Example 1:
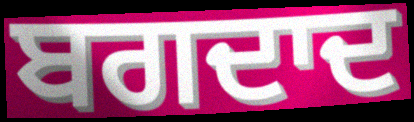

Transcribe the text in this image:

ਬਗਦਾਦ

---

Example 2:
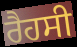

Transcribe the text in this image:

ਰੈਹਸੀ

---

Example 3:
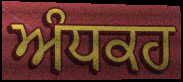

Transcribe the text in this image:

ਅੰਧਕਹ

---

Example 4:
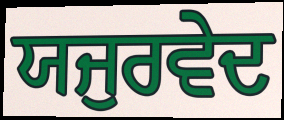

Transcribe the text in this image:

ਯਜੁਰਵੇਦ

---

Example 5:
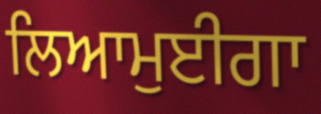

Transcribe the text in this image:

ਲਿਆਮੁਈਗਾ